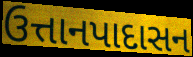
ઉત્તાનપાદાસન